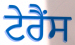
ਟੇਰੈਂਸ